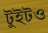
টুইটও